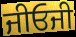
ਜੀਓਜੀ